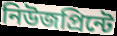
নিউজপ্রিন্টে